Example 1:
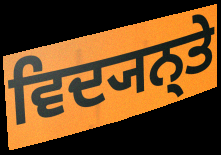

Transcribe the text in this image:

ਵਿਦ੍ਯਨ੍ਤੇ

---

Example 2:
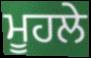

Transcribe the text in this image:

ਮੂਹਲੇ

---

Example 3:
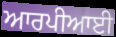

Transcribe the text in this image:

ਆਰਪੀਆਈ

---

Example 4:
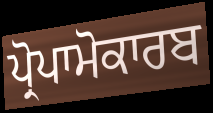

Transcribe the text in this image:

ਪ੍ਰੋਪਾਮੋਕਾਰਬ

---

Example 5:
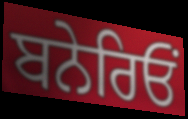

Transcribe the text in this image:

ਬਨੇਰਿਓਂ